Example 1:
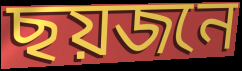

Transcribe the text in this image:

ছয়জনে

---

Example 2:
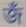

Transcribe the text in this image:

জঁ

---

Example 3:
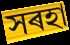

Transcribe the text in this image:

সৰহা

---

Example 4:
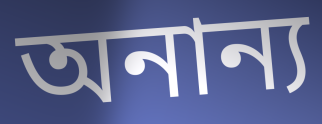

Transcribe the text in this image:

অনান্য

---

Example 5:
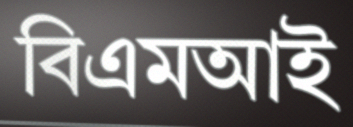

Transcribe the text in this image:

বিএমআই